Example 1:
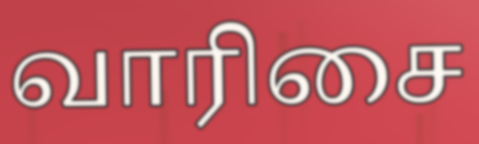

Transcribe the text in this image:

வாரிசை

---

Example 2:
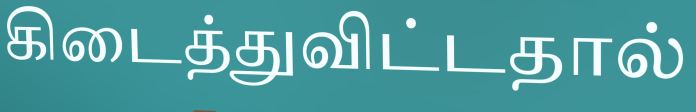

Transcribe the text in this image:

கிடைத்துவிட்டதால்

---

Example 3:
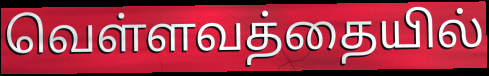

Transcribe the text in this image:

வெள்ளவத்தையில்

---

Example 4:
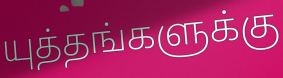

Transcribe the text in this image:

யுத்தங்களுக்கு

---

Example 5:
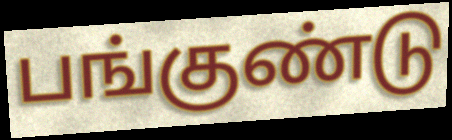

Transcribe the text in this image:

பங்குண்டு